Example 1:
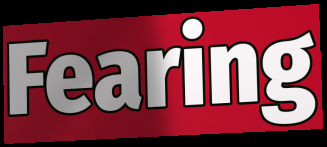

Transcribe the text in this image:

Fearing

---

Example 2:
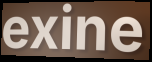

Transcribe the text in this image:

exine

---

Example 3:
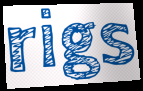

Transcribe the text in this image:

rigs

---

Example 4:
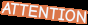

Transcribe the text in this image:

ATTENTION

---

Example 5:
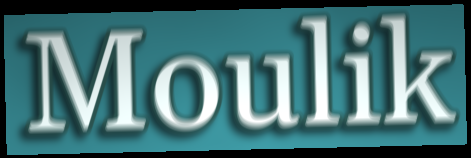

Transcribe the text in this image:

Moulik